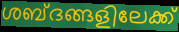
ശബ്ദങ്ങളിലേക്ക്